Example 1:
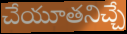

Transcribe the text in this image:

చేయూతనిచ్చే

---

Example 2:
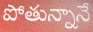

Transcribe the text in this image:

పోతున్నానే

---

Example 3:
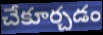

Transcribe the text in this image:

చేకూర్చడం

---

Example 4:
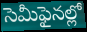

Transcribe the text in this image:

సెమీఫైనల్లో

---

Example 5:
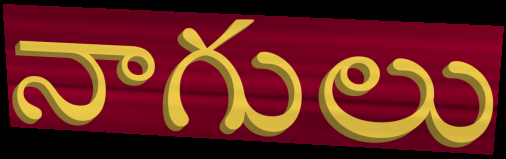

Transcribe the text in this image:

నాగులు